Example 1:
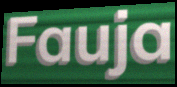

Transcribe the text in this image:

Fauja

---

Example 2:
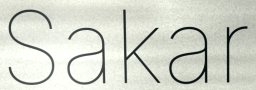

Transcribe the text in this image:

Sakar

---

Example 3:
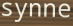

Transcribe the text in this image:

synne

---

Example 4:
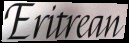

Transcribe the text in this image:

Eritrean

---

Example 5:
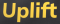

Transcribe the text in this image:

Uplift